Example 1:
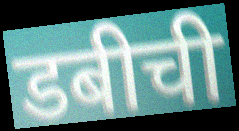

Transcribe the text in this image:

डबीची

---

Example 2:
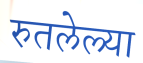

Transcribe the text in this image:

रुतलेल्या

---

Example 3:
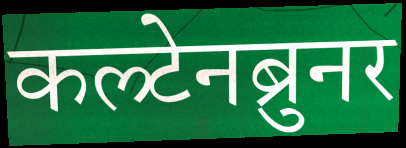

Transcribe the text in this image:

कल्टेनब्रुनर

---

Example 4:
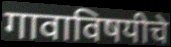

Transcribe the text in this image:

गावाविषयीचे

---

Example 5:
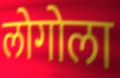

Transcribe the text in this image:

लोगोला